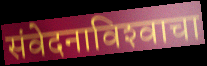
संवेदनाविश्वाचा